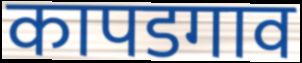
कापडगाव